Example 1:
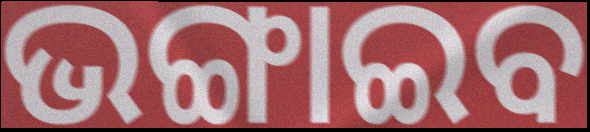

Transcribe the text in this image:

ଭଙ୍ଗାଇବ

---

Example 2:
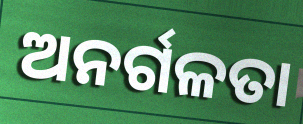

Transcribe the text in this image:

ଅନର୍ଗଳତା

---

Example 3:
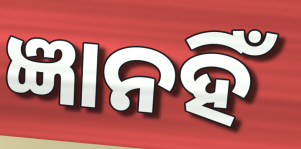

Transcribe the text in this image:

ଜ୍ଞାନହିଁ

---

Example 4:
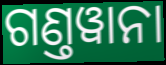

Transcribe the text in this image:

ଗଣ୍ତୱାନା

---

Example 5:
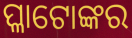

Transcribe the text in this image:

ପ୍ଳାଟୋଙ୍କର